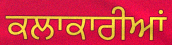
ਕਲਾਕਾਰੀਆਂ